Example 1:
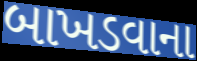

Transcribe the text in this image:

બાખડવાના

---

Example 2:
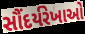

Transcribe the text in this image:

સૌંદર્યરેખાઓ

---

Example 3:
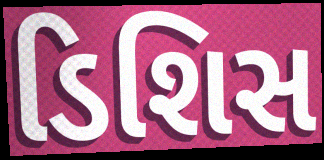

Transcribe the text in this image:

ડિશિસ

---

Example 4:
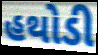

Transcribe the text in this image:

હથોડી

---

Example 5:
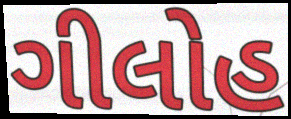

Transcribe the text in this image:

ગીલોહ